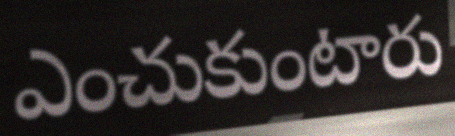
ఎంచుకుంటారు